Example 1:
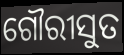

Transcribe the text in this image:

ଗୌରୀସୁତ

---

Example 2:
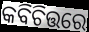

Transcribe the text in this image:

କବିଚିତ୍ତରେ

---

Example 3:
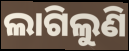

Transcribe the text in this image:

ଲାଗିଲୁଣି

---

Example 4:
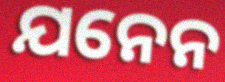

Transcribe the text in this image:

ଯନେନ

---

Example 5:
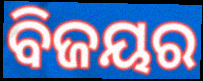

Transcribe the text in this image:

ବିଜୟର